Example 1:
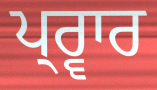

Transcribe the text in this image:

ਪ੍ਰ੍ਵਾਰ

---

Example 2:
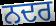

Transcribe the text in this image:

ਨਦਰ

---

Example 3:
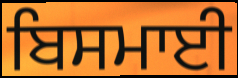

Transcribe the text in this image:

ਬਿਸਮਾਈ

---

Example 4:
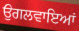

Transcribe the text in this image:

ਉਗਲਵਾਇਆਂ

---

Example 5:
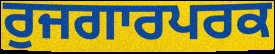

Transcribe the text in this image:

ਰੁਜਗਾਰਪਰਕ